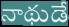
నాథుడే